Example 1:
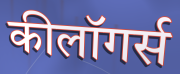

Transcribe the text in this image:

कीलॉगर्स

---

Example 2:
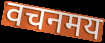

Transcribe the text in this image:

वचनमय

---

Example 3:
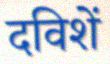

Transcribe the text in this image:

दविशें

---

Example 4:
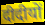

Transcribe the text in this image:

दीदीयों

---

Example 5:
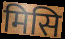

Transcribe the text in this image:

मिसि